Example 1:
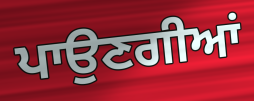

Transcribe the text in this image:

ਪਾਉਣਗੀਆਂ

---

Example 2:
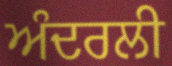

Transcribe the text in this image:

ਅੰਦਰਲੀ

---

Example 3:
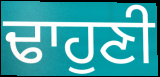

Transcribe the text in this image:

ਢਾਹੁਣੀ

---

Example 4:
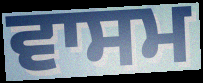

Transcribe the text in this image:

ਵਾਸਮ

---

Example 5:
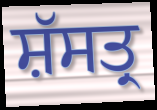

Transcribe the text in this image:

ਸ਼ੱਸਤ੍ਰ